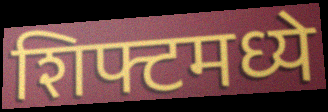
शिफ्टमध्ये